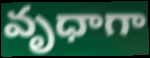
వృధాగా